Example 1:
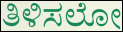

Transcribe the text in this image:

ತಿಳಿಸಲೋ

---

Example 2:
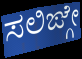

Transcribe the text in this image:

ಸಲಿಙ್ಗೇ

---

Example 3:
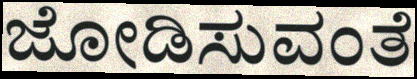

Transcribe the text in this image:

ಜೋಡಿಸುವಂತೆ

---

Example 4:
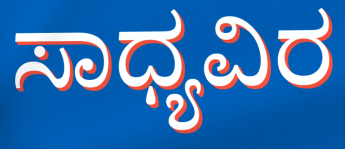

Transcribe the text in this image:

ಸಾಧ್ಯವಿರ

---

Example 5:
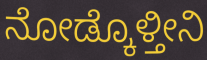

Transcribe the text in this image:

ನೋಡ್ಕೊಳ್ತೀನಿ